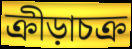
ক্রীড়াচক্র